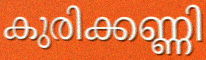
കുരിക്കണ്ണി